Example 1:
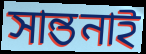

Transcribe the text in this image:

সান্তনাই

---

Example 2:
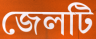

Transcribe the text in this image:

জেলটি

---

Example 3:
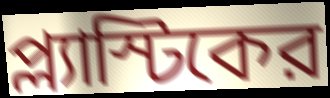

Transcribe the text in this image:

প্ল্যাস্টিকের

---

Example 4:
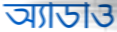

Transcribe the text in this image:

অ্যাডাও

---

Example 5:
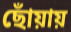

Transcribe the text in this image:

ছোঁয়ায়